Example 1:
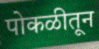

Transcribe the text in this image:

पोकळीतून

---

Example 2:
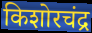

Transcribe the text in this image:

किशोरचंद्र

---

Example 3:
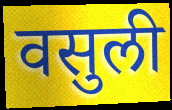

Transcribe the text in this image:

वसुली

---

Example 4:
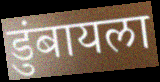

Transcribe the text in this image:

डुंबायला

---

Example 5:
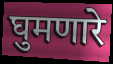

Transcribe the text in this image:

घुमणारे